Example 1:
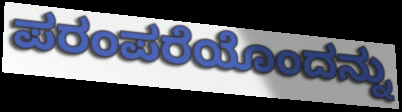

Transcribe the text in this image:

ಪರಂಪರೆಯೊಂದನ್ನು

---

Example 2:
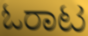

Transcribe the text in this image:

ಓರಾಟ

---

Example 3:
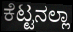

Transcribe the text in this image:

ಕೆಟ್ಟನಲ್ಲಾ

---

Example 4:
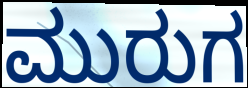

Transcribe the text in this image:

ಮುರುಗ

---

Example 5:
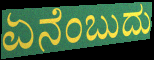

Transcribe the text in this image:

ಏನೆಂಬುದು